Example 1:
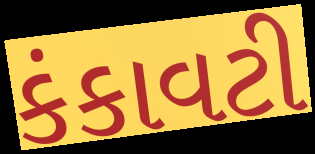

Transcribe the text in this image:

કંકાવટી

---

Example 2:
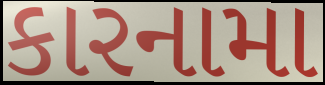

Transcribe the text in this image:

કારનામા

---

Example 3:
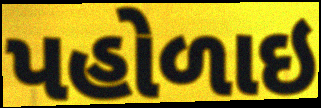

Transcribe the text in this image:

પહોળાઇ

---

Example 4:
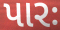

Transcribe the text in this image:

પારઃ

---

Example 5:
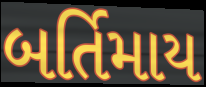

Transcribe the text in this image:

બર્તિમાય